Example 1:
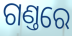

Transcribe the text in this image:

ଗଣ୍ତରେ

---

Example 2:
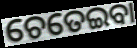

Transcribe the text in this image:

ଚେତେଇବା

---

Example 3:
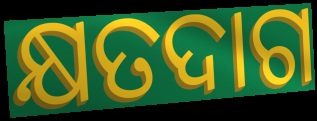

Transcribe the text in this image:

କ୍ଷତଦାଗ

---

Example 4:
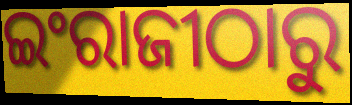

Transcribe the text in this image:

ଇଂରାଜୀଠାରୁ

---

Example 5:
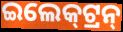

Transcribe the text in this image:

ଇଲେକ୍‍ଟ୍ରନ୍